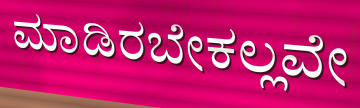
ಮಾಡಿರಬೇಕಲ್ಲವೇ